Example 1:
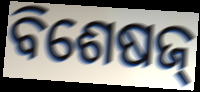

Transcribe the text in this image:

ବିଶେଷଜ୍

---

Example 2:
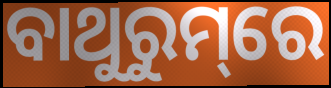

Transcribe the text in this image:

ବାଥୁରୁମ୍‌ରେ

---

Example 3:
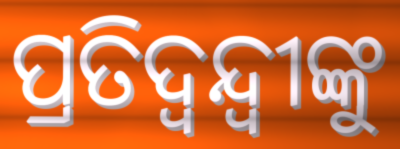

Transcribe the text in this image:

ପ୍ରତିଦ୍ଵନ୍ଦ୍ୱୀଙ୍କୁ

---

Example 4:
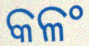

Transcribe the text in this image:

କଳଂ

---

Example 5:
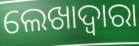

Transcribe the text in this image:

ଲେଖାଦ୍ୱାରା